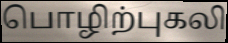
பொழிற்புகலி